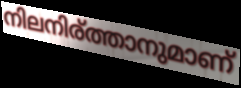
നിലനിര്ത്താനുമാണ്